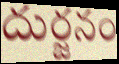
దుర్జనం